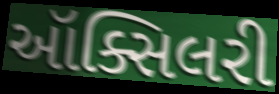
ઑક્સિલરી